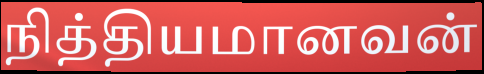
நித்தியமானவன்